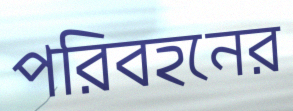
পরিবহনের